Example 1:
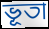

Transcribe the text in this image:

ভূতা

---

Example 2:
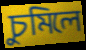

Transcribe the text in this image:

চুমিলে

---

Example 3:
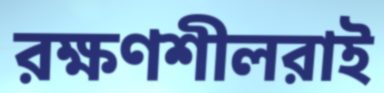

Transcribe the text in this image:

রক্ষণশীলরাই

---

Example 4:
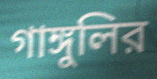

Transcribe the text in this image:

গাঙ্গুলির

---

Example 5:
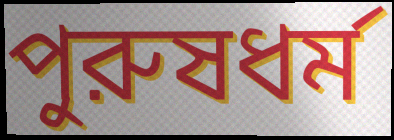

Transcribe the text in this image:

পুরুষধর্ম